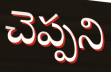
చెప్పని